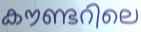
കൗണ്ടറിലെ